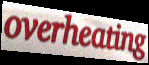
overheating